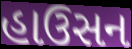
હાઉસન